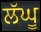
ਲੱਘੂ